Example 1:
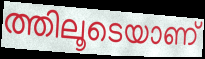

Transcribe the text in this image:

ത്തിലൂടെയാണ്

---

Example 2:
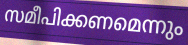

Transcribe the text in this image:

സമീപിക്കണമെന്നും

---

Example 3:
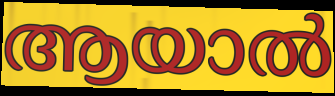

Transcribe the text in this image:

ആയാൽ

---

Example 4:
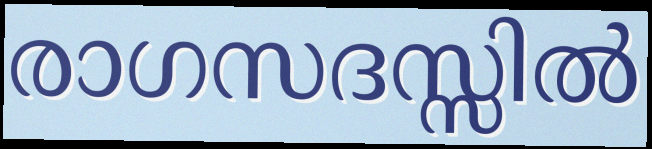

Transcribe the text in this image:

രാഗസദസ്സിൽ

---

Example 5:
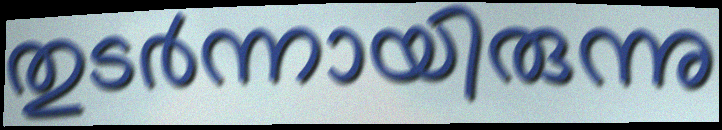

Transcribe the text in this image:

തുടർന്നായിരുന്നു